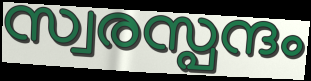
സ്വരസ്പന്ദം